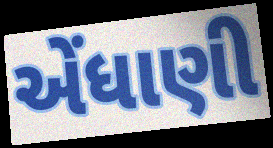
એંધાણી